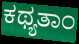
ಕಥ್ಯತಾಂ